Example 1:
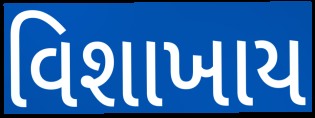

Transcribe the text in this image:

વિશાખાય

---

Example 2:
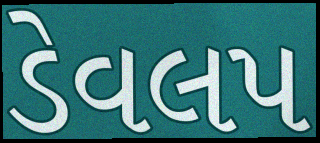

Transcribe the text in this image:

ડેવલપ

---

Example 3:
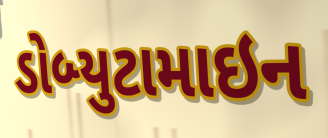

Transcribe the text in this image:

ડોબ્યુટામાઇન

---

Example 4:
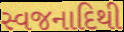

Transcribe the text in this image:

સ્વજનાદિથી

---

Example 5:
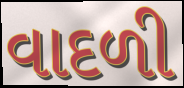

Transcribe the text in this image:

વાદળી